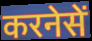
करनेसें